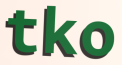
tko